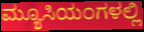
ಮ್ಯೂಸಿಯಂಗಳಲ್ಲಿ